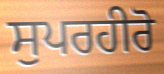
ਸੁਪਰਹੀਰੋ